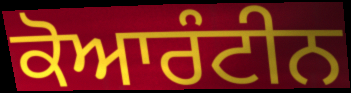
ਕੋਆਰੰਟੀਨ